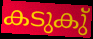
കടുകു്